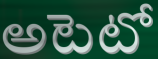
అటెటో